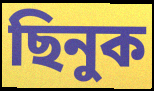
ছিনুক